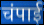
चंपाई